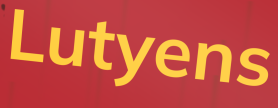
Lutyens